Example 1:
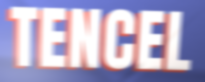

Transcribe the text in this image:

TENCEL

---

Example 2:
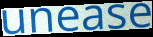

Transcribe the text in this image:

unease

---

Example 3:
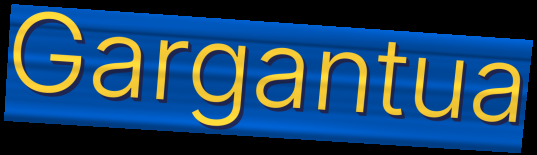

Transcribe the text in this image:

Gargantua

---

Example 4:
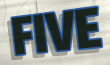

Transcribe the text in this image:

FIVE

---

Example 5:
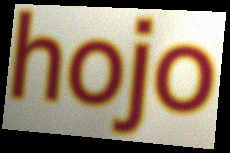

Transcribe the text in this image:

hojo